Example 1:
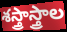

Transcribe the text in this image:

శస్త్రాస్త్రాల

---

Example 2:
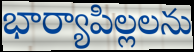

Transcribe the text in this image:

భార్యాపిల్లలను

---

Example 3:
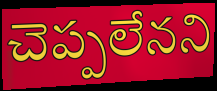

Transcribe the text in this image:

చెప్పలేనని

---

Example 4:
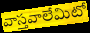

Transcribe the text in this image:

వాస్తవాలేమిటో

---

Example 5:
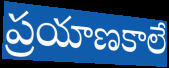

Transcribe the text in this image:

ప్రయాణకాలే